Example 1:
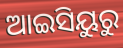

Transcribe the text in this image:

ଆଇସିୟୁରୁ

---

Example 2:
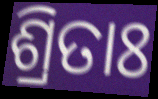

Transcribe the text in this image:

ଶ୍ରିତାଃ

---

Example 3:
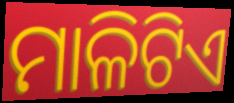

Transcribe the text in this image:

ମାଳିଟିଏ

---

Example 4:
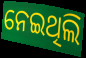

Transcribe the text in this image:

ନେଇଥିଲି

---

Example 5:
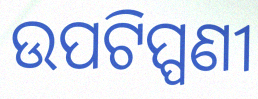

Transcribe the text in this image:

ଉପଟିପ୍ପଣୀ